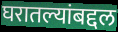
घरातल्यांबद्दल